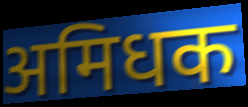
अमिधक